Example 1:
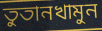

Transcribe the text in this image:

তুতানখামুন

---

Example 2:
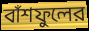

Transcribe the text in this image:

বাঁশফুলের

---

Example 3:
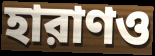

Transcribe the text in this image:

হারাণও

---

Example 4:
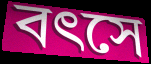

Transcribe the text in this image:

বৎসে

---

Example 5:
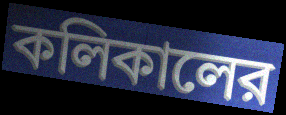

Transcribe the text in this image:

কলিকালের